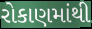
રોકાણમાંથી